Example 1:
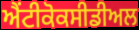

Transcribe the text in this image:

ਐਂਟੀਕੋਕਸੀਡੀਅਲ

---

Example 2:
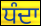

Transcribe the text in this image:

ਧੰਦਾ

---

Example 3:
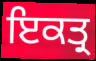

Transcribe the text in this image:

ਇਕਤ੍ਰ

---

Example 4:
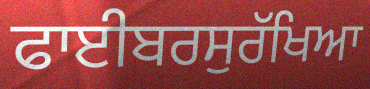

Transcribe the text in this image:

ਫਾਈਬਰਸੁਰੱਖਿਆ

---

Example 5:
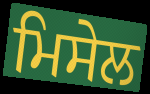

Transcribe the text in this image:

ਮਿਸੇਲ